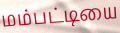
மம்பட்டியை